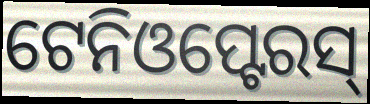
ଟେନିଓପ୍ଟେରସ୍